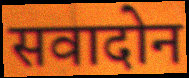
सवादोन